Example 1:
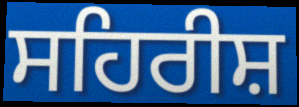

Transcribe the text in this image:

ਸਹਿਰੀਸ਼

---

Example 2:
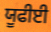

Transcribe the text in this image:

ਯੂਫੀਈ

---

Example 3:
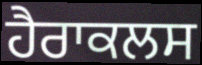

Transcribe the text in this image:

ਹੈਰਾਕਲਸ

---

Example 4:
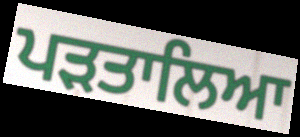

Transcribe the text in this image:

ਪੜਤਾਲਿਆ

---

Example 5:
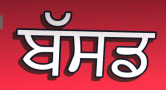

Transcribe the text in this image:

ਬੱਸਡ